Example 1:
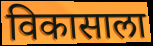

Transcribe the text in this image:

विकासाला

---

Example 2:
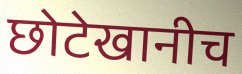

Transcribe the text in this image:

छोटेखानीच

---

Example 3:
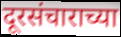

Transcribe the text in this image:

दूरसंचाराच्या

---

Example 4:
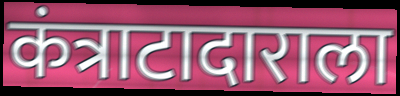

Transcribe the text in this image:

कंत्राटादाराला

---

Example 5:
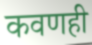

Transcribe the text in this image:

कवणही